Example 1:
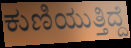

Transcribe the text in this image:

ಕುಣಿಯುತ್ತಿದ್ದೆ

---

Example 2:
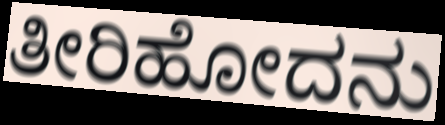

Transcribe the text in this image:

ತೀರಿಹೋದನು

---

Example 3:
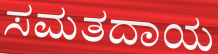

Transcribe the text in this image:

ಸಮತದಾಯ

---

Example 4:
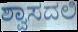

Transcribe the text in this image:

ಶ್ವಾಸದಲಿ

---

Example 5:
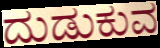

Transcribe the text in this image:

ದುಡುಕುವ